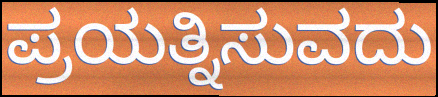
ಪ್ರಯತ್ನಿಸುವದು